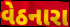
વેઠનારા